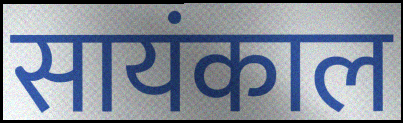
सायंकाल